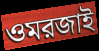
ওমরজাই